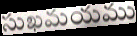
సుఖమయము